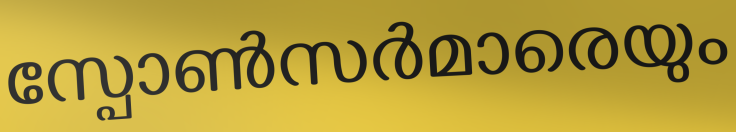
സ്പോൺസർമാരെയും